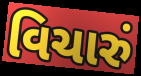
વિચારું